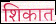
शिकात